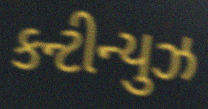
કન્ટીન્યુઝ